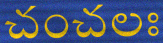
చంచలః